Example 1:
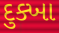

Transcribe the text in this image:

દુક્ખા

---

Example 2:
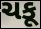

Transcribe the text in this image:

ચકૂ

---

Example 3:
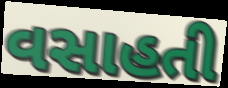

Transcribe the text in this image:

વસાહતી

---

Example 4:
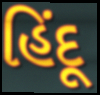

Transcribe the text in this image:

હિંદૂ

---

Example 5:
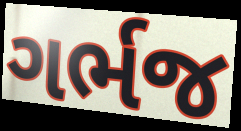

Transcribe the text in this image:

ગર્ભજ